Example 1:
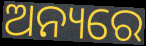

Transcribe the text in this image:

ଅନ୍ୟରେ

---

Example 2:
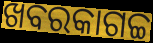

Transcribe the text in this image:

ଖବରକାଗଚ୍ଚ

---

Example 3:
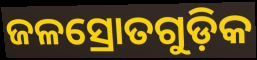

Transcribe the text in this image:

ଜଳସ୍ରୋତଗୁଡ଼ିକ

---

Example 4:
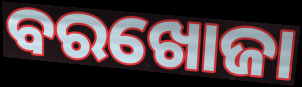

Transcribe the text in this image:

ବରଖୋଜା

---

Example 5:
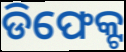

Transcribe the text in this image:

ଡିଫେକ୍ଟ